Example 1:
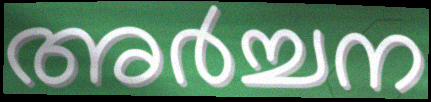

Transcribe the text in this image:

അർച്ചന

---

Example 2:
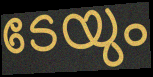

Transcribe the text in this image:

ടേയും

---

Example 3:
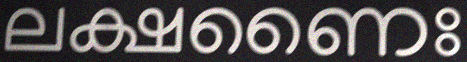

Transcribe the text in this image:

ലക്ഷണൈഃ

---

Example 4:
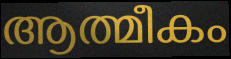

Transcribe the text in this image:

ആത്മീകം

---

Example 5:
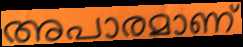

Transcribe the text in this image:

അപാരമാണ്